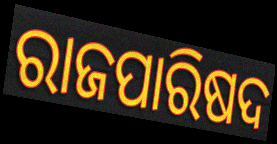
ରାଜପାରିଷଦ